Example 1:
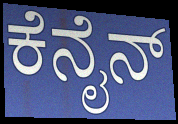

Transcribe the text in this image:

ಕೆನೈನ್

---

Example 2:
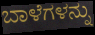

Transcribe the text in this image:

ಬಾಳೆಗಳನ್ನು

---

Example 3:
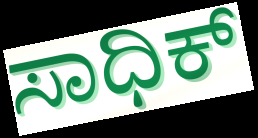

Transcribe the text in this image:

ಸಾಧಿಕ್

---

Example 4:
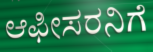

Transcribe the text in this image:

ಆಫೀಸರನಿಗೆ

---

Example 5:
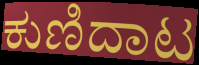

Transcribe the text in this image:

ಕುಣಿದಾಟ